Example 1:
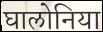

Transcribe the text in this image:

घालोनिया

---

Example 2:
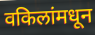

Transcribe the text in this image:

वकिलांमधून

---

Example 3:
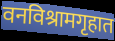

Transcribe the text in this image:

वनविश्रामगृहात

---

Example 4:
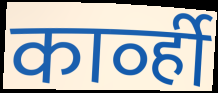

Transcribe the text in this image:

कार्व्ही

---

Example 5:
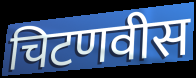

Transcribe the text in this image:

चिटणवीस